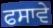
ਫਸਾਵੇ